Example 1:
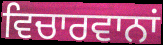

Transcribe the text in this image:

ਵਿਚਾਰਵਾਨਾਂ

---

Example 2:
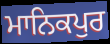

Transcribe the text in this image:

ਮਾਨਿਕਪੁਰ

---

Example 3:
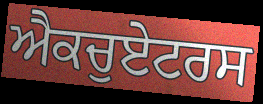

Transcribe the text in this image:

ਐਕਚੁਏਟਰਸ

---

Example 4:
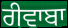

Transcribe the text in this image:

ਰੀਵਾਬਾ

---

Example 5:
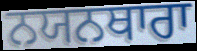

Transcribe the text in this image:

ਨਯਨਥਾਰਾ